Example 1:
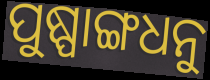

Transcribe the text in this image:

ପୁଷ୍ପାଙ୍ଗଧନୁ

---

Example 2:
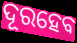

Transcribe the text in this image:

ଦୂରହେବ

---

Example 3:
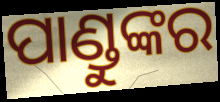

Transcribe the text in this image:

ପାଣ୍ଡୁଙ୍କର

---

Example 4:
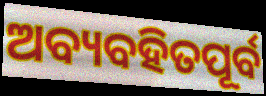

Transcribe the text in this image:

ଅବ୍ୟବହିତପୂର୍ବ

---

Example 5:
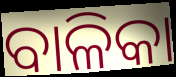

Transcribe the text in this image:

ବାଳିକା